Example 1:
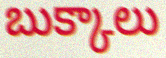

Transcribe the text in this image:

బుక్కాలు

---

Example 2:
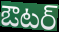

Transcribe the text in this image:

ఔటర్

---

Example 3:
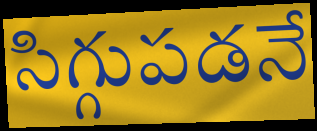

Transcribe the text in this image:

సిగ్గుపడనే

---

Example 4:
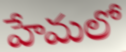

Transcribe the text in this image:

హేమలో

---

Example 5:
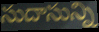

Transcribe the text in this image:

సుదాసున్ని